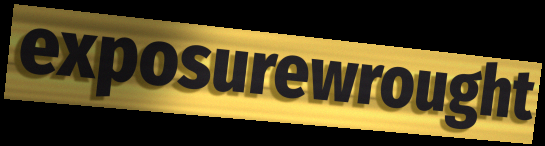
exposurewrought